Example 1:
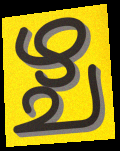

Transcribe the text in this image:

ഴ്ച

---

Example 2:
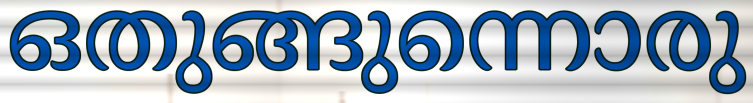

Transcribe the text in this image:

ഒതുങ്ങുന്നൊരു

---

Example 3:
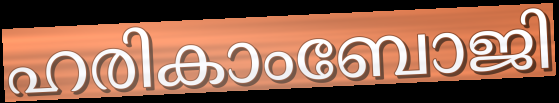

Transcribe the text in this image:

ഹരികാംബോജി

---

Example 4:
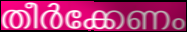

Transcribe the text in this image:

തീർക്കേണം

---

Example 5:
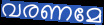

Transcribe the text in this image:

വരണമേ